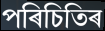
পৰিচিতিৰ